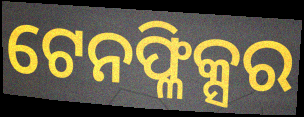
ଟେନଫ୍ଳିକ୍ସର